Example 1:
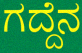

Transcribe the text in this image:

ಗದ್ದೆನ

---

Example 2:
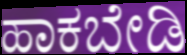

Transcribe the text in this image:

ಹಾಕಬೇಡಿ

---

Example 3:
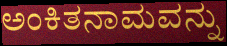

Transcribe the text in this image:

ಅಂಕಿತನಾಮವನ್ನು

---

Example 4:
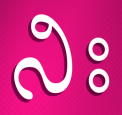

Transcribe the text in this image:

ನಿಃ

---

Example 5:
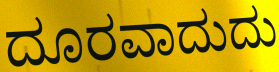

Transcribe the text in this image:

ದೂರವಾದುದು